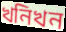
খনিখন